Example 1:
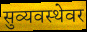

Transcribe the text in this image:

सुव्यवस्थेवर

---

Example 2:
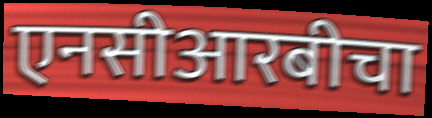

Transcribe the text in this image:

एनसीआरबीचा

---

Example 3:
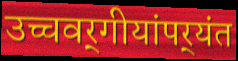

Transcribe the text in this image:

उच्चवर्गीयांपर्यंत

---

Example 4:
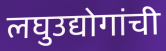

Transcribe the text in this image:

लघुउद्योगांची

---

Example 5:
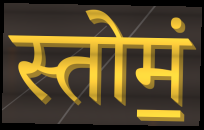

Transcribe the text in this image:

स्तोमं॒